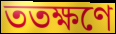
ততক্ষণে